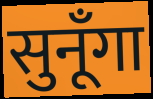
सुनूँगा